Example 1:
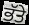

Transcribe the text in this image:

ਭੱਤੇ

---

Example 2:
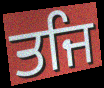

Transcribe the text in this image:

ਤਜਿ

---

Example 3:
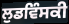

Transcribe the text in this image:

ਲੁਡਵਿੰਸਕੀ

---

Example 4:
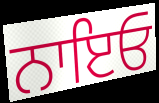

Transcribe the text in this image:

ਨਾਇਓ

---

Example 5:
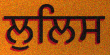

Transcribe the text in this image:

ਲੁਲਿਸ